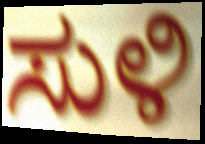
ಸುಳಿ